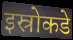
इस्रोकडे